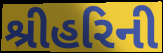
શ્રીહરિની